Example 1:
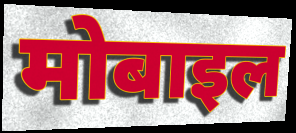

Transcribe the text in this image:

मोबाइल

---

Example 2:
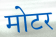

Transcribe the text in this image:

मोटर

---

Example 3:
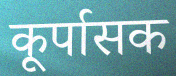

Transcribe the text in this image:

कूर्पासक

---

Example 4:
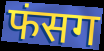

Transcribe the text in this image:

फंसग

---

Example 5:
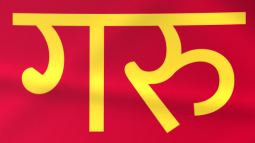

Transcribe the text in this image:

गरु